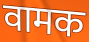
वामक